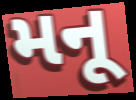
મનૂ